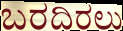
ಬರದಿರಲು